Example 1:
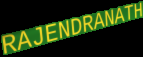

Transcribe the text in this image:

RAJENDRANATH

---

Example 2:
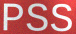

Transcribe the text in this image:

PSS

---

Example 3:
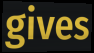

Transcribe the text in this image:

gives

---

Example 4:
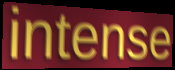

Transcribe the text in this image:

intense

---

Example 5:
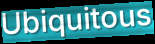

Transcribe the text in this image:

Ubiquitous